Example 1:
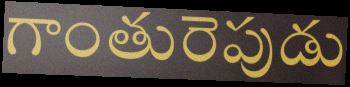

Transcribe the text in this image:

గాంతురెపుడు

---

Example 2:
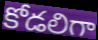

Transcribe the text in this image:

కోడలిగా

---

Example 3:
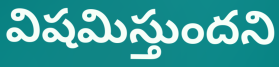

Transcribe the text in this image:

విషమిస్తుందని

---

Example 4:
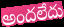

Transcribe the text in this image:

అందలేదు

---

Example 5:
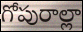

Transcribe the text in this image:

గోపురాల్లా